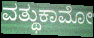
ವತ್ಥುಕಾಮೋ